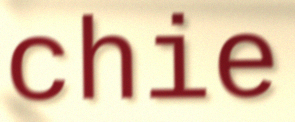
chie